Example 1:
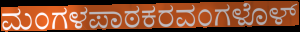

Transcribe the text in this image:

ಮಂಗಳಪಾಠಕರವಂಗಳೊಳ್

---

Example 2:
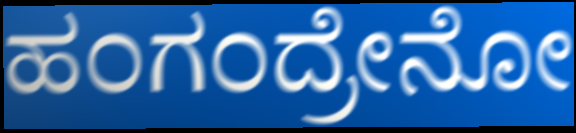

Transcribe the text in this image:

ಹಂಗಂದ್ರೇನೋ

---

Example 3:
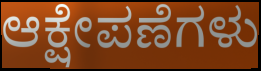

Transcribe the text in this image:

ಆಕ್ಷೇಪಣೆಗಳು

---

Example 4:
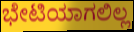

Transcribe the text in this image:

ಭೇಟಿಯಾಗಲಿಲ್ಲ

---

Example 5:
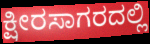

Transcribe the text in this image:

ಕ್ಷೀರಸಾಗರದಲ್ಲಿ